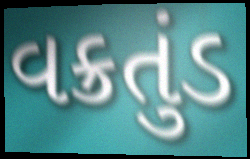
વક્રતુંડ